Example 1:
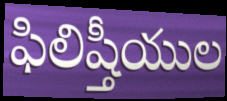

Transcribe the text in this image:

ఫిలిష్తీయుల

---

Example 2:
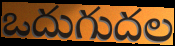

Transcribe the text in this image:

ఒదుగుదల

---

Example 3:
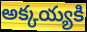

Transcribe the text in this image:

అక్కయ్యకి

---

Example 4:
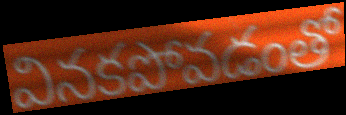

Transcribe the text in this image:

వినకపోవడంతో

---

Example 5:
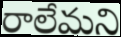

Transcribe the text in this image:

రాలేమని